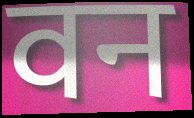
वन